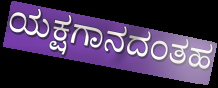
ಯಕ್ಷಗಾನದಂತಹ